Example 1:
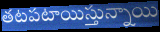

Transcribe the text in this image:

తటపటాయిస్తున్నాయి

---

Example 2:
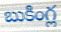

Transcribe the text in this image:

బుకింగ్ల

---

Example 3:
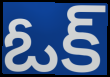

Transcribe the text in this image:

ఓక్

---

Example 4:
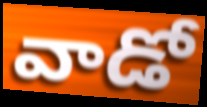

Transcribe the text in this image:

వాడో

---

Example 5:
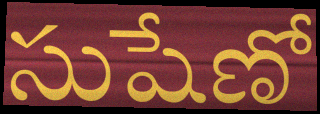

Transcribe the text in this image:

సుషేణో